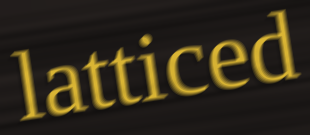
latticed